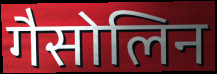
गैसोलिन